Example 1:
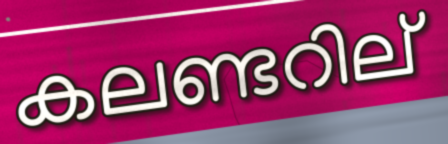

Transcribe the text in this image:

കലണ്ടറില്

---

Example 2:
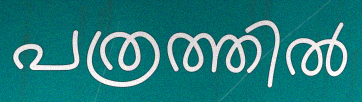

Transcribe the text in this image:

പത്രത്തിൽ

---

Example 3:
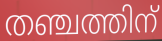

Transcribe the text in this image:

തഞ്ചത്തിന്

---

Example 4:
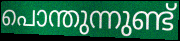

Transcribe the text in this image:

പൊന്തുന്നുണ്ട്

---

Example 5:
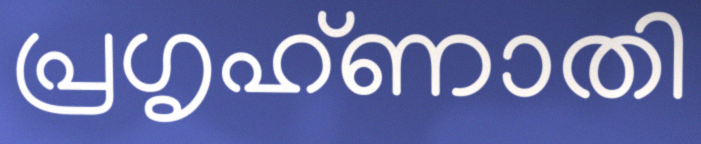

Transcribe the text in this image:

പ്രഗൃഹ്ണാതി